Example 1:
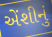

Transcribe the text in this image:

એંશીનું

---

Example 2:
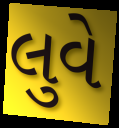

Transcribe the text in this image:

લુવે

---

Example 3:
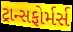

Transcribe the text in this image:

ટ્રાન્સફોર્મર્સ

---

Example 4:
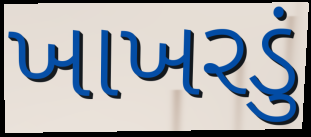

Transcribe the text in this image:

ખાખરડું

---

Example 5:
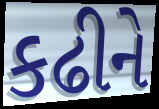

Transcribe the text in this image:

કઢીને